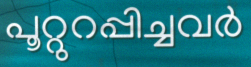
പൂറ്റുറപ്പിച്ചവർ